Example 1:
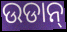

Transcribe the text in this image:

ଉଡାନ୍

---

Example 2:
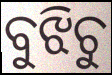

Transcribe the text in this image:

ବୁଝିଚୁ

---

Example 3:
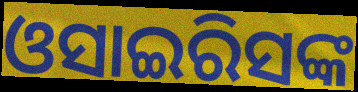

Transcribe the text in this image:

ଓସାଇରିସଙ୍କ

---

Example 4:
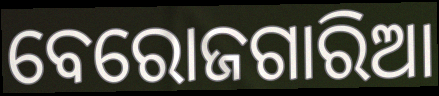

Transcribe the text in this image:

ବେରୋଜଗାରିଆ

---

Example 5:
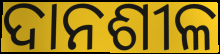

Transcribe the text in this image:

ଦାନଶୀଳ